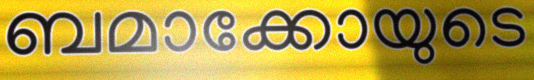
ബമാക്കോയുടെ